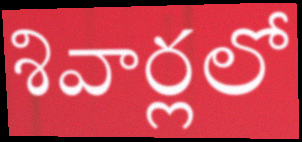
శివార్లలో